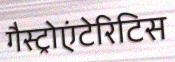
गैस्ट्रोएंटेरिटिस